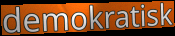
demokratisk